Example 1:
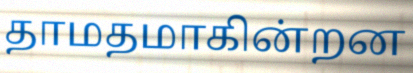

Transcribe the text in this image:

தாமதமாகின்றன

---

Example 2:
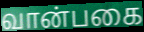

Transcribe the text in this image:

வான்பகை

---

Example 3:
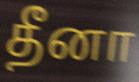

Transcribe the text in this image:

தீனா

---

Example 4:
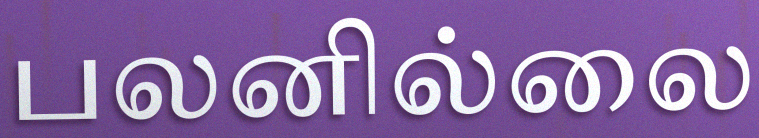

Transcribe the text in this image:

பலனில்லை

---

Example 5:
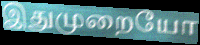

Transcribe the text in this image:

இதுமுறையோ